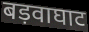
बड़वाघाट